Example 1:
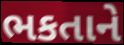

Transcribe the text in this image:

ભકતાને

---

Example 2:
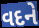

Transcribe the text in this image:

વદને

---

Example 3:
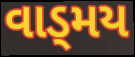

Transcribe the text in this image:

વાડ્મય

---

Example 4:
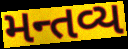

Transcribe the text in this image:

મન્તવ્ય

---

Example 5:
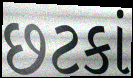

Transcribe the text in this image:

છટકાં